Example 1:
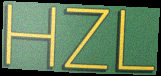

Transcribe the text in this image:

HZL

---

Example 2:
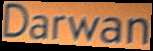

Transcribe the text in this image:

Darwan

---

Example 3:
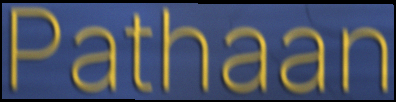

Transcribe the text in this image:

Pathaan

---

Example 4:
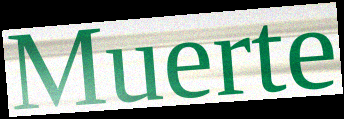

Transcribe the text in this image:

Muerte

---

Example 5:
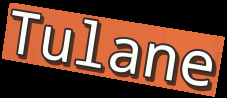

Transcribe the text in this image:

Tulane